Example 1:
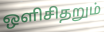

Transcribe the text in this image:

ஒளிசிதறும்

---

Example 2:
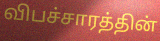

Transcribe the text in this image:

விபச்சாரத்தின்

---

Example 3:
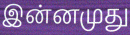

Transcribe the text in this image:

இன்னமுது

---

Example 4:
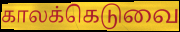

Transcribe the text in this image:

காலக்கெடுவை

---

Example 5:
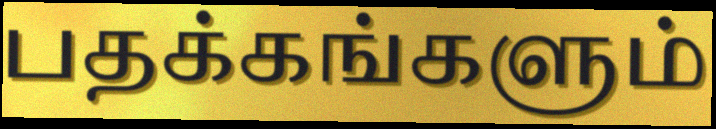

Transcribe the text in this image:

பதக்கங்களும்